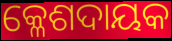
କ୍ଳେଶଦାୟକ